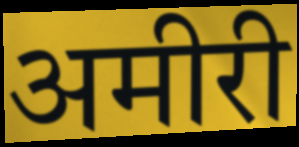
अमीरी